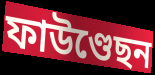
ফাউণ্ডেছন